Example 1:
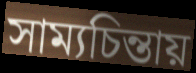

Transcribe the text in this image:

সাম্যচিন্তায়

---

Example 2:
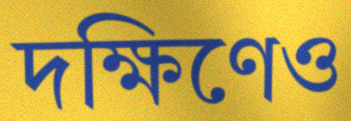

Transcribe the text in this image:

দক্ষিণেও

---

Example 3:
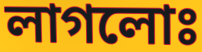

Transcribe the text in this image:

লাগলোঃ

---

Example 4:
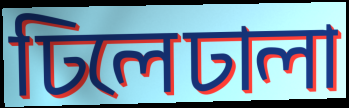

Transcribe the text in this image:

ঢিলেঢালা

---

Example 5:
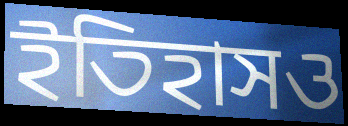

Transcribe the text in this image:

ইতিহাসও